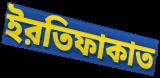
ইরতিফাকাত